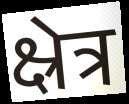
क्ष्रेत्र